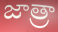
జాత్రా